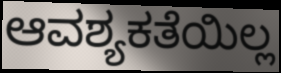
ಆವಶ್ಯಕತೆಯಿಲ್ಲ